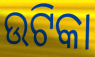
ଉଟିକା